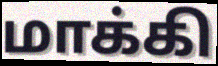
மாக்கி